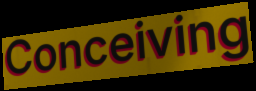
Conceiving